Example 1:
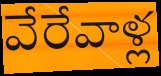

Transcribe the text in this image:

వేరేవాళ్ల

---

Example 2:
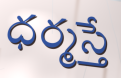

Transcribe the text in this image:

ధర్మస్తే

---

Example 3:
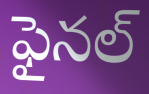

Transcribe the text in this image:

ఫైనల్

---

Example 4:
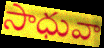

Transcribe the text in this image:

సాధువా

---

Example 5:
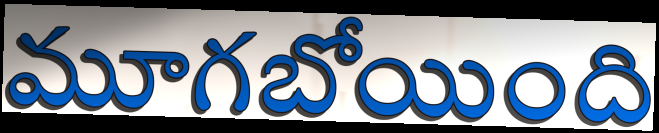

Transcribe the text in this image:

మూగబోయింది